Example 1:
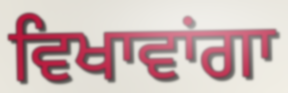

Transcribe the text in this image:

ਵਿਖਾਵਾਂਗਾ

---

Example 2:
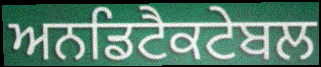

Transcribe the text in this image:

ਅਨਡਿਟੈਕਟੇਬਲ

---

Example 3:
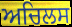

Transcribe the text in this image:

ਅਚਿਲਸ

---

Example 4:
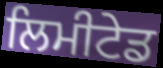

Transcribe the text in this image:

ਲਿਮੀਟੇਡ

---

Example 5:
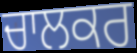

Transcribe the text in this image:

ਚਾਲਕਰ